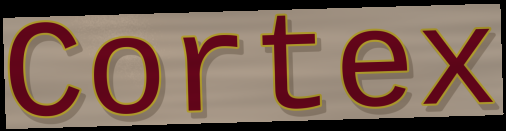
Cortex